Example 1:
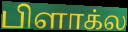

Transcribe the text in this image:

பிளாக்ல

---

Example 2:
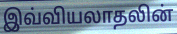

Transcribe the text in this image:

இவ்வியலாதலின்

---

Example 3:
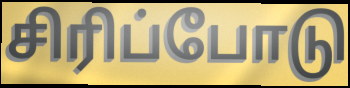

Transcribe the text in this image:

சிரிப்போடு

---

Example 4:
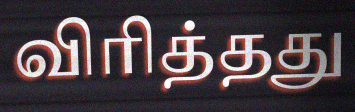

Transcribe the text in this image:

விரித்தது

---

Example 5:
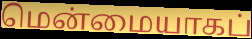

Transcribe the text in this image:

மென்மையாகப்